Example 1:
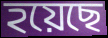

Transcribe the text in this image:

হয়েছে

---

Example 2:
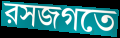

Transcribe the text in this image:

রসজগতে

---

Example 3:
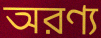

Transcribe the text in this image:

অরণ্য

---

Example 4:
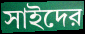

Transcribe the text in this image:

সাইদের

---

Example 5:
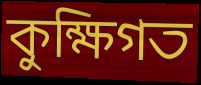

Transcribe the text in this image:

কুক্ষিগত